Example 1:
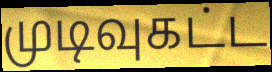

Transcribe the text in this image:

முடிவுகட்ட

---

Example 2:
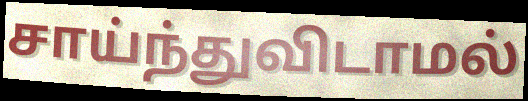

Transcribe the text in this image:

சாய்ந்துவிடாமல்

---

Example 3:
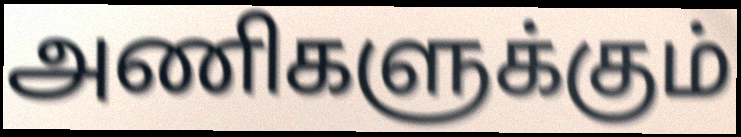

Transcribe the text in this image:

அணிகளுக்கும்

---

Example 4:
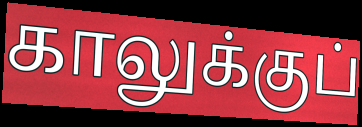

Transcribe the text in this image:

காலுக்குப்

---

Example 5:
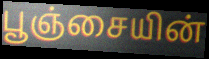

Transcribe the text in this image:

பூஞ்சையின்